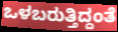
ಒಳಬರುತ್ತಿದ್ದಂತೆ